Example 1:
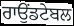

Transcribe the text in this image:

ਰਾਉਂਡਟੇਬਲ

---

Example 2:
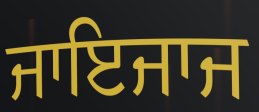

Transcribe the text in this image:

ਜਾਇਜਾਜ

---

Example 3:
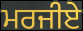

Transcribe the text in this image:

ਮਰਜੀਏ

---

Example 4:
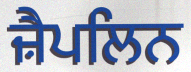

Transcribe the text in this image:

ਜ਼ੈਪਲਿਨ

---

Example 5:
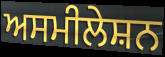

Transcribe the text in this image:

ਅਸਮੀਲੇਸ਼ਨ